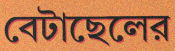
বেটাছেলের